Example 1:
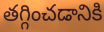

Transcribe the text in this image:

తగ్గించడానికి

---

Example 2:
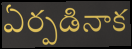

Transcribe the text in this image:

ఏర్పడినాక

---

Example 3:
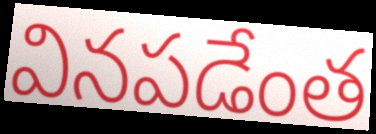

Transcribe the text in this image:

వినపడేంత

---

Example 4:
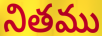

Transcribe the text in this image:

నితము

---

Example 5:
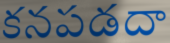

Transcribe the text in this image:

కనపడదా